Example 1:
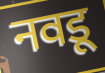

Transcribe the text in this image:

नवडू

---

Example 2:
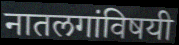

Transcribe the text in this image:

नातलगांविषयी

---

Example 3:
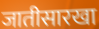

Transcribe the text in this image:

जातीसारखा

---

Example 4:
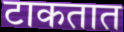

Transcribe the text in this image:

टाकतात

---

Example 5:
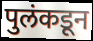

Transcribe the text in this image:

पुलंकडून